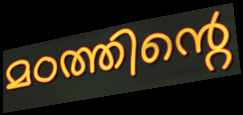
മഠത്തിന്റെ